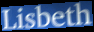
Lisbeth